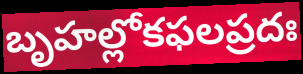
బృహల్లోకఫలప్రదః